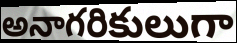
అనాగరికులుగా